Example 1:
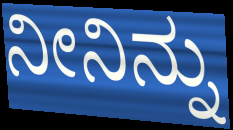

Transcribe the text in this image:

ನೀನಿನ್ನು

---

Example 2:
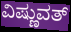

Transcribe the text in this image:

ವಿಷ್ಣುವತ್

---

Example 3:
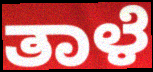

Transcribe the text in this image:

ತಾಳೆ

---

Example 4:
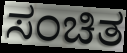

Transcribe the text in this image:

ಸಂಚಿತ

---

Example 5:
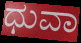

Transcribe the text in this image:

ಧುವಾ